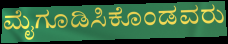
ಮೈಗೂಡಿಸಿಕೊಂಡವರು